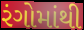
રંગોમાંથી